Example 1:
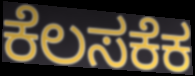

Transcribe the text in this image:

ಕೆಲಸಕೆಕ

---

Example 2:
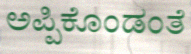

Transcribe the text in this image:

ಅಪ್ಪಿಕೊಂಡಂತೆ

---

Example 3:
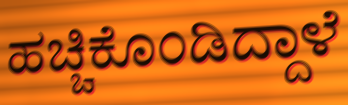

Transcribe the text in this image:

ಹಚ್ಚಿಕೊಂಡಿದ್ದಾಳೆ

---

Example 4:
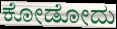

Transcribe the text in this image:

ಕೋಡೋದು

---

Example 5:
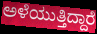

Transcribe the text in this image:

ಅಳೆಯುತ್ತಿದ್ದಾರೆ